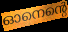
ഓനെന്റെ